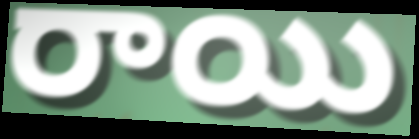
రాయి